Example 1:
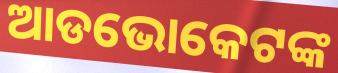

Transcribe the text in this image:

ଆଡଭୋକେଟଙ୍କ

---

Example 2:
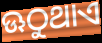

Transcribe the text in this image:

ଊଠୁଥାଏ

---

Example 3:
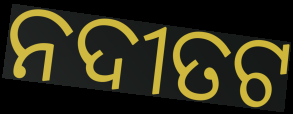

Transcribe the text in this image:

ନଦୀତଟ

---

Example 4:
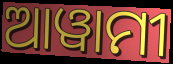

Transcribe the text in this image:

ଆୱାମୀ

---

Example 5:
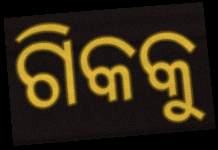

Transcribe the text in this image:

ଗିକକୁ